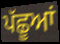
ਪੱਛੂਆਂ